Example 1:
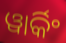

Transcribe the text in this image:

ୱାର୍କିଂ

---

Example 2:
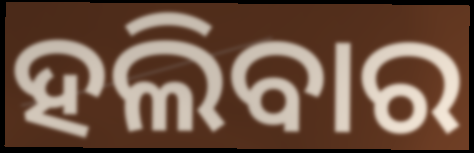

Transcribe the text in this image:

ହଲିବାର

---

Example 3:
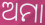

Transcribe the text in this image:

ଅମା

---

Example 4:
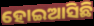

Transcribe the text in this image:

ହୋଇଆସିଛି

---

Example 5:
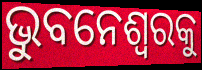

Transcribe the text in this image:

ଭୁବନେଶ୍ୱରକୁ